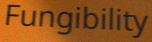
Fungibility